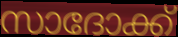
സാദോക്ക്